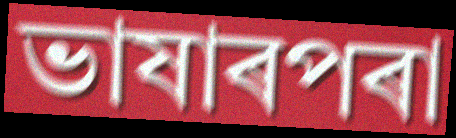
ভাষাৰপৰা